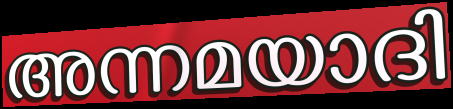
അന്നമയാദി